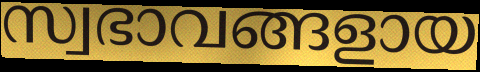
സ്വഭാവങ്ങളായ